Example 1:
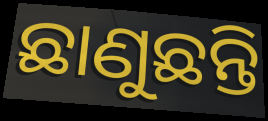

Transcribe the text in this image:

ଛାଣୁଛନ୍ତି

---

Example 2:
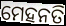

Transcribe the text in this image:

ମେହନତି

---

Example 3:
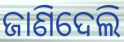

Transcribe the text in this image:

ଜାଣିଦେଲି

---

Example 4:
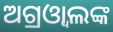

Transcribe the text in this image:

ଅଗ୍ରଓ୍ବାଲଙ୍କ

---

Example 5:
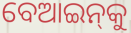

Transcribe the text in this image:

ବେଆଇନ୍‌କୁ